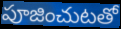
పూజించుటతో